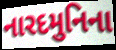
નારદમુનિના